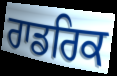
ਰਾਡਰਿਕ